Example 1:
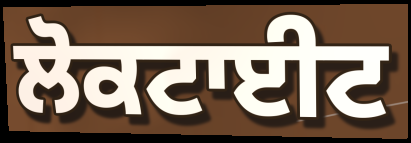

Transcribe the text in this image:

ਲੋਕਟਾਈਟ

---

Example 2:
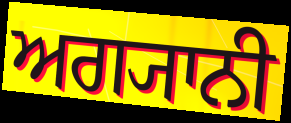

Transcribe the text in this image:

ਅਗ੍ਯਾਨੀ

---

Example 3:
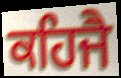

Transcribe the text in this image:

ਕਹਿਜੈ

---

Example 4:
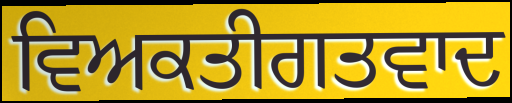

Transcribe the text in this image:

ਵਿਅਕਤੀਗਤਵਾਦ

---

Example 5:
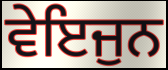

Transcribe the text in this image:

ਵੇਇਜੁਨ